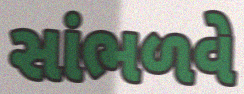
સાંભળવે